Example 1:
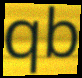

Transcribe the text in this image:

qb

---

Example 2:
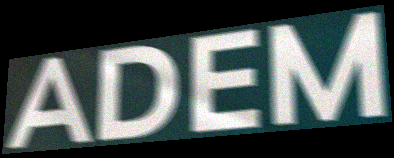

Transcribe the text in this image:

ADEM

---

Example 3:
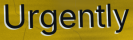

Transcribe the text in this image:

Urgently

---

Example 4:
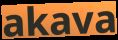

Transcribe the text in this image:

akava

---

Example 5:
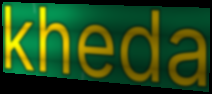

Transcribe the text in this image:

kheda